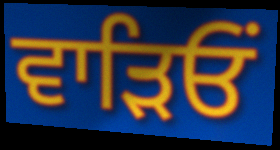
ਵਾੜਿਓਂ